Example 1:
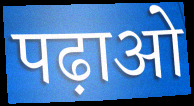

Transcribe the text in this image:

पढ़ाओ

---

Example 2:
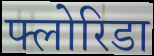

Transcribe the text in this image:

फ्लोरिडा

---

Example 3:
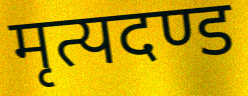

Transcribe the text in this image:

मृत्यदण्ड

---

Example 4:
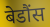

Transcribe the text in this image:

बेडौंस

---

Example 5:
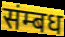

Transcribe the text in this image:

संम्बध